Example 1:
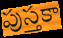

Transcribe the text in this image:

పుస్తకా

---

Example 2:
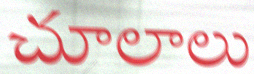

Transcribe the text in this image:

చూలాలు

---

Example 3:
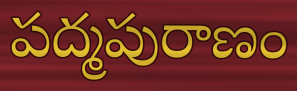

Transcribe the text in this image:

పద్మపురాణం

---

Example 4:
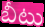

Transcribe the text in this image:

బీటు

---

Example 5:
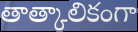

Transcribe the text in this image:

తాత్కాలికంగా